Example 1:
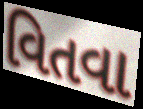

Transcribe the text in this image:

વિતવા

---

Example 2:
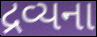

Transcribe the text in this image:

દ્રવ્યના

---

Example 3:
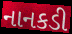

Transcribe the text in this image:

નાનકડી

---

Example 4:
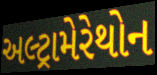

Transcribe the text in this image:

અલ્ટ્રામેરેથોન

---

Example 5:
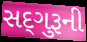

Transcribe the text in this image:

સદ્‌ગુરૂની